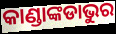
କାଣ୍ଡାଙ୍କଡାଭୁର